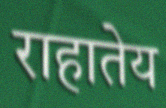
राहातेय